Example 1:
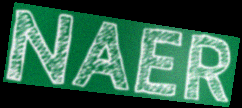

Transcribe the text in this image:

NAER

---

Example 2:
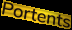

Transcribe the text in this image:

Portents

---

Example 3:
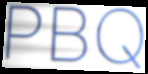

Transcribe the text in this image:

PBQ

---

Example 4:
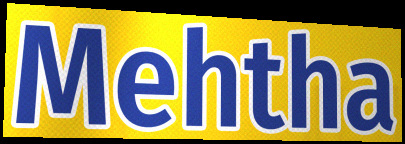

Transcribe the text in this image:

Mehtha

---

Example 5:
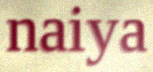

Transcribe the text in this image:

naiya